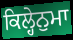
ਕਿਲ੍ਹੇਨੁਮਾ